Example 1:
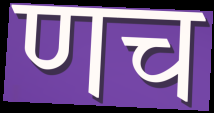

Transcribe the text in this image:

णच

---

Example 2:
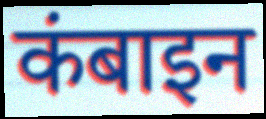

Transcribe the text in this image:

कंबाइन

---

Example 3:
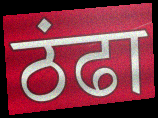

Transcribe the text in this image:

ठंढा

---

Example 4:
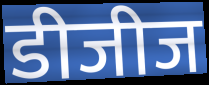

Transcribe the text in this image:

डीजीज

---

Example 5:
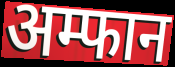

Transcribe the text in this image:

अम्फान